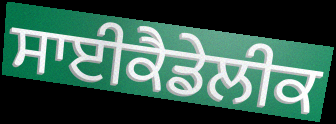
ਸਾਈਕੈਡੇਲੀਕ